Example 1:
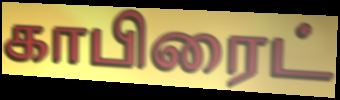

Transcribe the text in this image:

காபிரைட்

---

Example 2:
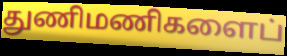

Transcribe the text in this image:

துணிமணிகளைப்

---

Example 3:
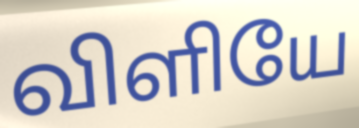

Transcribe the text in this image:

விளியே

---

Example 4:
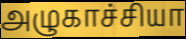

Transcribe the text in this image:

அழுகாச்சியா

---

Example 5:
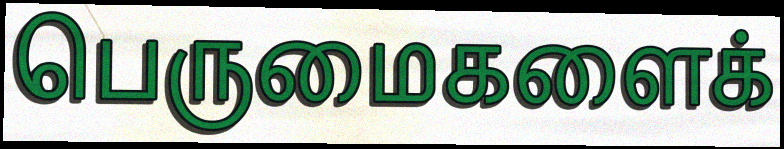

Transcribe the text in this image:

பெருமைகளைக்